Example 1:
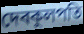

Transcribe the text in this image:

দেবকুলপতি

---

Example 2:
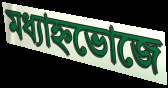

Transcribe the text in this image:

মধ্যাহ্নভোজে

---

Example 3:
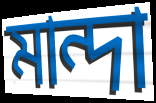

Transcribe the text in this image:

মান্দা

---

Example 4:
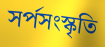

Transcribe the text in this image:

সর্পসংস্কৃতি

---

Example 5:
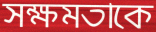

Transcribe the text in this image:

সক্ষমতাকে